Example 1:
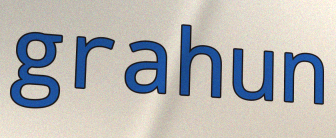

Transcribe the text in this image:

grahun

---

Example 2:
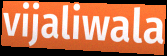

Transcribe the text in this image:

vijaliwala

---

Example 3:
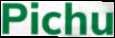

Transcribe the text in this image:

Pichu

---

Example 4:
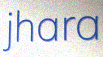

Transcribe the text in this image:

jhara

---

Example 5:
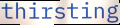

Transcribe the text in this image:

thirsting